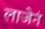
लाजेनं